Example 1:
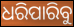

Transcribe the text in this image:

ଧରିପାରିବୁ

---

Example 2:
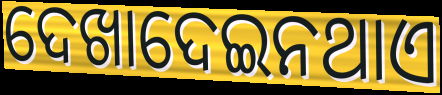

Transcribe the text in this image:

ଦେଖାଦେଇନଥାଏ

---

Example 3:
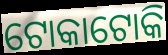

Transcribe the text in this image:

ଟୋକାଟୋକି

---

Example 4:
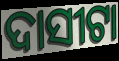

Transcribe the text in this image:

ଦାସୀଟା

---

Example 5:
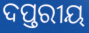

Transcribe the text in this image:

ଦପ୍ତରୀୟ